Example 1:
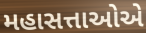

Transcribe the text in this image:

મહાસત્તાઓએ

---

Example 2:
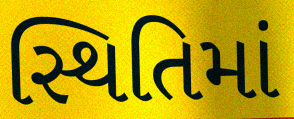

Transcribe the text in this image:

સ્થિતિમાં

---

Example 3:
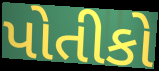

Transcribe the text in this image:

પોતીકો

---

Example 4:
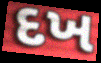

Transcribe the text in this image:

દખ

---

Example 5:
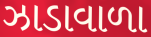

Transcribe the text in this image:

ઝાડાવાળા